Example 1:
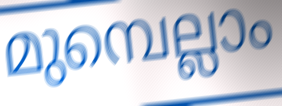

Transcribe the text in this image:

മുമ്പെല്ലാം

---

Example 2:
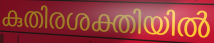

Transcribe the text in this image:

കുതിരശക്തിയിൽ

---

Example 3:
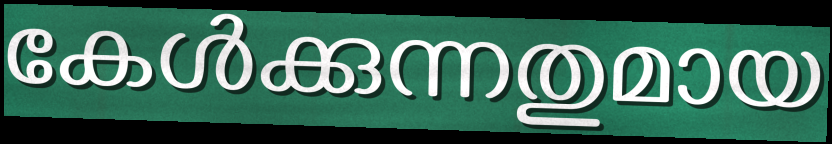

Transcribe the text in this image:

കേൾക്കുന്നതുമായ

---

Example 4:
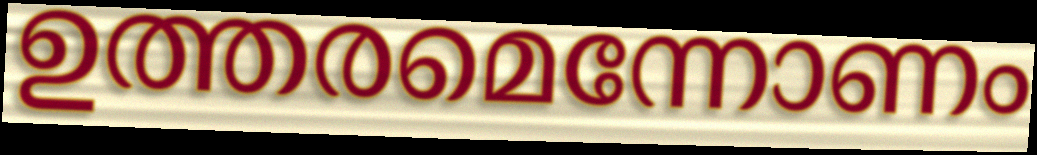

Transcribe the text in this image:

ഉത്തരമെന്നോണം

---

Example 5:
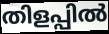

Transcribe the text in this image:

തിളപ്പിൽ